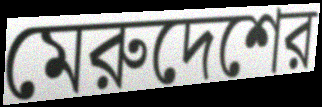
মেরুদেশের